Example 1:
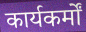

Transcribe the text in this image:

कार्यकर्मों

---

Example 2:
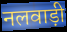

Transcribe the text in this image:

नलवाड़ी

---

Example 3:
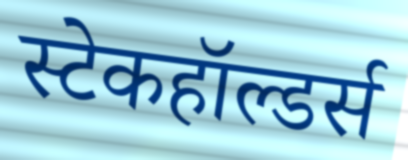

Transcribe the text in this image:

स्टेकहॉल्डर्स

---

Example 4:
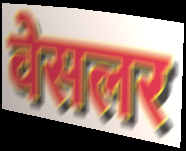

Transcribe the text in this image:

वेसलर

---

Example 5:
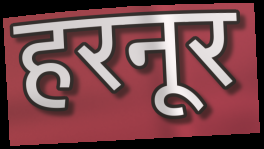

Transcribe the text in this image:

हरनूर